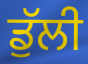
ਡੁੱਲੀ